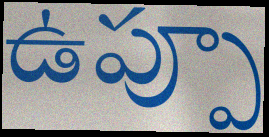
ఉప్పూ